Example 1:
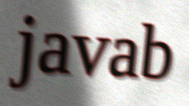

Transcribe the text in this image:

javab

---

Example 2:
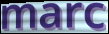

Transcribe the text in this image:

marc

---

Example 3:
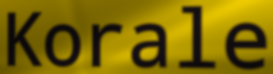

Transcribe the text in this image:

Korale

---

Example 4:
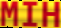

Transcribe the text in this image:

MIH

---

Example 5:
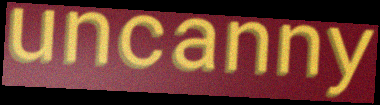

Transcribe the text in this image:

uncanny